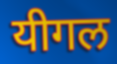
यीगल